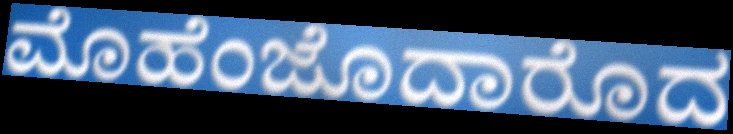
ಮೊಹೆಂಜೊದಾರೊದ